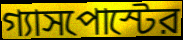
গ্যাসপোস্টের